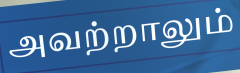
அவற்றாலும்